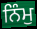
ਨਿੰਮੁ